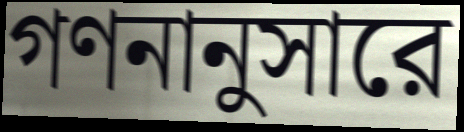
গণনানুসারে